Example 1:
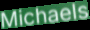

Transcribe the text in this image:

Michaels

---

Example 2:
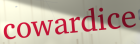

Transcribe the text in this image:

cowardice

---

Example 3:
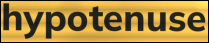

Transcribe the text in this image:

hypotenuse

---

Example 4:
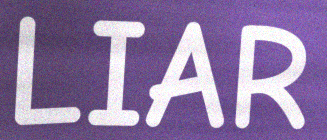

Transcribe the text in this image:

LIAR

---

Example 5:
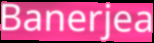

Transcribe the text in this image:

Banerjea